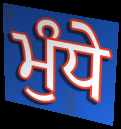
ਮੁੰਧੇ